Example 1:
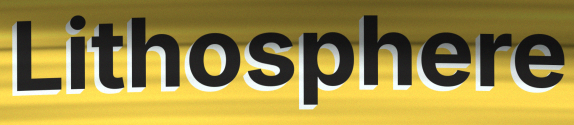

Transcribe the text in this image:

Lithosphere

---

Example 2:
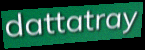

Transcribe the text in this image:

dattatray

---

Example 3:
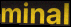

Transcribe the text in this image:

minal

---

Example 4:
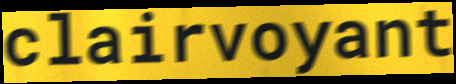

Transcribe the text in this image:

clairvoyant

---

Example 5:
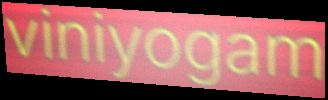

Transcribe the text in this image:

viniyogam